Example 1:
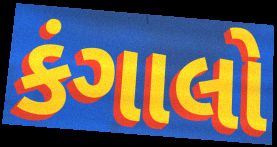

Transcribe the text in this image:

કંગાલો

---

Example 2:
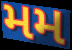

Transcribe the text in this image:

મમ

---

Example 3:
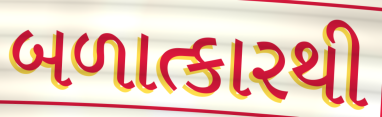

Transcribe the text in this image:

બળાત્કારથી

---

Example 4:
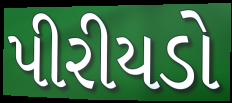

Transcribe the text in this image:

પીરીયડો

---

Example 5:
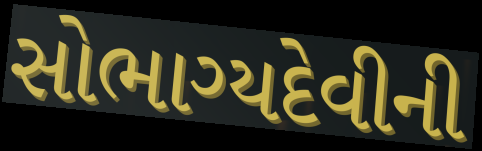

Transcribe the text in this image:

સોભાગ્યદેવીની